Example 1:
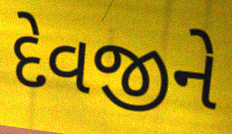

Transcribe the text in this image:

દેવજીને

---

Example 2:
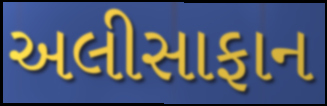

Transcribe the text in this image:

અલીસાફાન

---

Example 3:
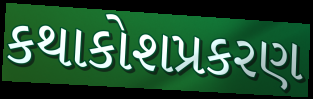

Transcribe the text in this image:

કથાકોશપ્રકરણ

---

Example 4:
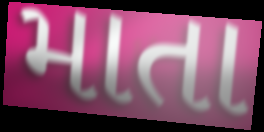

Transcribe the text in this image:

માતા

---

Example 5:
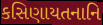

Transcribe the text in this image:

કસિણાયતનાનિ